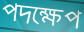
পদক্ষেপ